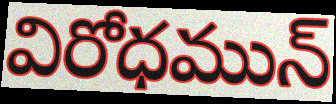
విరోధమున్